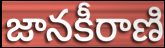
జానకీరాణి